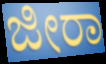
ಜೀರಾ